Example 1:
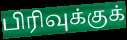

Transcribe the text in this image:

பிரிவுக்குக்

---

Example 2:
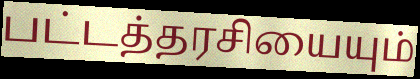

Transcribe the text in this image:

பட்டத்தரசியையும்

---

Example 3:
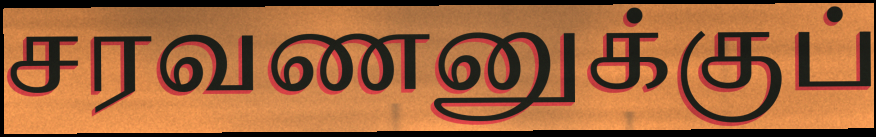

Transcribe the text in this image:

சரவணனுக்குப்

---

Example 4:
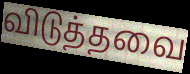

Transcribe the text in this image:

விடுத்தவை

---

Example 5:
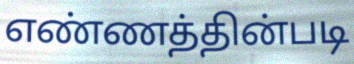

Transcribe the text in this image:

எண்ணத்தின்படி